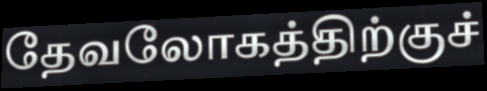
தேவலோகத்திற்குச்